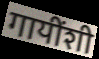
गायींशी